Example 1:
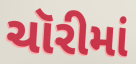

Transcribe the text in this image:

ચૉરીમાં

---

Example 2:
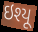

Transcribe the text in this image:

ઇશ્યૂ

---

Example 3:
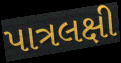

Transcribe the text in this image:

પાત્રલક્ષી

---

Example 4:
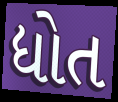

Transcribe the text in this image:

દ્યોત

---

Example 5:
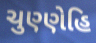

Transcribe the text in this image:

ચુણ્ણેહિ